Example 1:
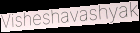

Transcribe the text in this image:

Visheshavashyak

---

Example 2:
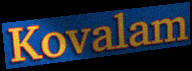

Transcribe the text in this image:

Kovalam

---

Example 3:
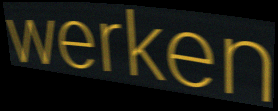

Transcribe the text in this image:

werken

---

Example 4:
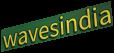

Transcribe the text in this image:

wavesindia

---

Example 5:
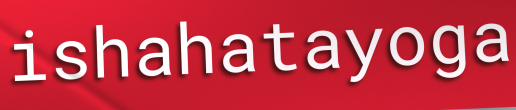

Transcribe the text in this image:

ishahatayoga